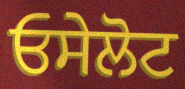
ਓਸੇਲੋਟ